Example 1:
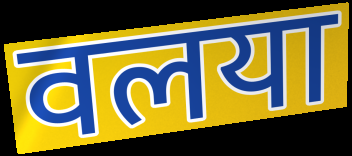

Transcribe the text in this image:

वलया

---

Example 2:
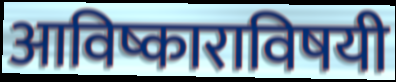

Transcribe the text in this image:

आविष्काराविषयी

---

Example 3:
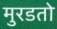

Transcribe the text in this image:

मुरडतो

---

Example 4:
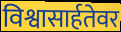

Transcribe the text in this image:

विश्वासार्हतेवर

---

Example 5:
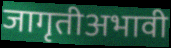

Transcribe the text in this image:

जागृतीअभावी